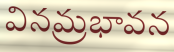
వినమ్రభావన